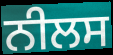
ਨੀਲਸ